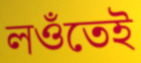
লওঁতেই